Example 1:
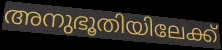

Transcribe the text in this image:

അനുഭൂതിയിലേക്ക്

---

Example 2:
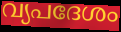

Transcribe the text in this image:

വ്യപദേശം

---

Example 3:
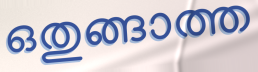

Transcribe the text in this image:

ഒതുങ്ങാത്ത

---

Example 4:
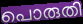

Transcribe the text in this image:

പൊരുതി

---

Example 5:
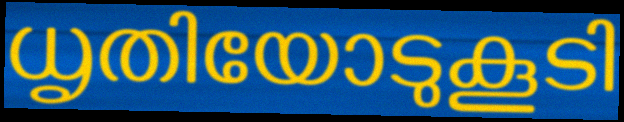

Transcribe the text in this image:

ധൃതിയോടുകൂടി